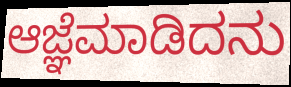
ಆಜ್ಞೆಮಾಡಿದನು